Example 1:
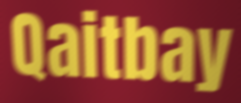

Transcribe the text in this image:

Qaitbay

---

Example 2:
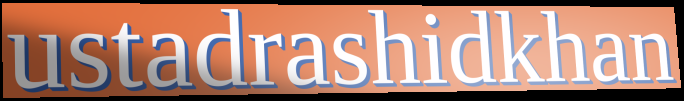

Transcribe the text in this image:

ustadrashidkhan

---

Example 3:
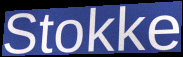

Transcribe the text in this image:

Stokke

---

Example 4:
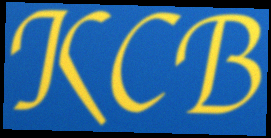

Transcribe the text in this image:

KCB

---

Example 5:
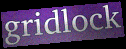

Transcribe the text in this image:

gridlock